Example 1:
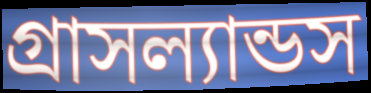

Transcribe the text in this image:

গ্রাসল্যান্ডস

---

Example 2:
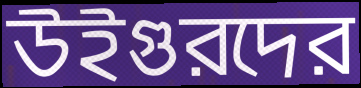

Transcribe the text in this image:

উইগুরদের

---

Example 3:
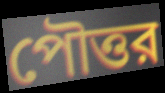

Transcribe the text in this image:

পৌত্তর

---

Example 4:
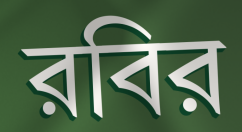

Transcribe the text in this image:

রবির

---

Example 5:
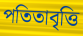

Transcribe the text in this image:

পতিতাবৃত্তি